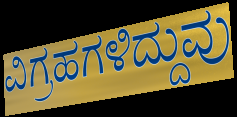
ವಿಗ್ರಹಗಳಿದ್ದುವು